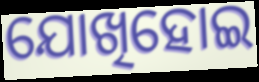
ଯୋଖିହୋଇ